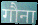
गौना